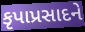
કૃપાપ્રસાદને